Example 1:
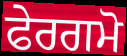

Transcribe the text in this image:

ਫੇਰਗਮੋ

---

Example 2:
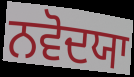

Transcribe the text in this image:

ਨਵੋਦਯਾ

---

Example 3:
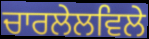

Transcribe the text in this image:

ਚਾਰਲੇਲਵਿਲੇ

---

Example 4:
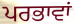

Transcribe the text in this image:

ਪਰਭਾਵਾਂ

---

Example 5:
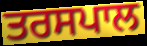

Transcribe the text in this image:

ਤਰਸਪਾਲ